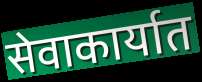
सेवाकार्यात